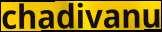
chadivanu